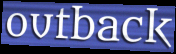
outback